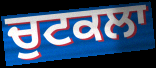
ਚੁਟਕਲਾ